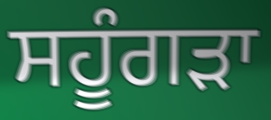
ਸਹੂੰਗੜਾ